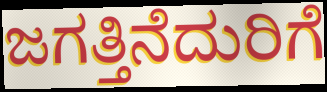
ಜಗತ್ತಿನೆದುರಿಗೆ